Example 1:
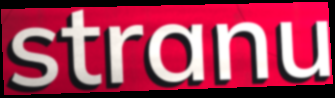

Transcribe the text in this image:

stranu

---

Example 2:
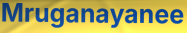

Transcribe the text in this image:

Mruganayanee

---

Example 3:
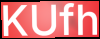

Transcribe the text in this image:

KUfh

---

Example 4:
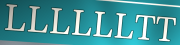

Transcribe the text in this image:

LLLLLLTT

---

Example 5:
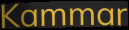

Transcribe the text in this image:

Kammar